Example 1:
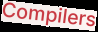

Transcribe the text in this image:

Compilers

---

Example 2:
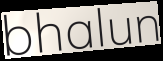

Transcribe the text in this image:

bhalun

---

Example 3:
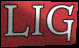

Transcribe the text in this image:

LIG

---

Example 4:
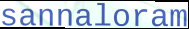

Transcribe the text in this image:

sannaloram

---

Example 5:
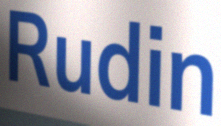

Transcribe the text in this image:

Rudin